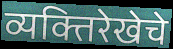
व्यक्तिरेखेचे